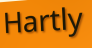
Hartly